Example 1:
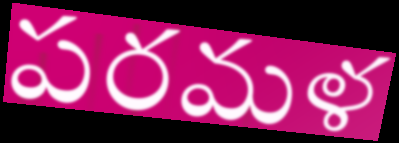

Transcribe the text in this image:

పరమళ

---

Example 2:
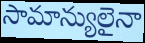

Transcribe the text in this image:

సామాన్యులైనా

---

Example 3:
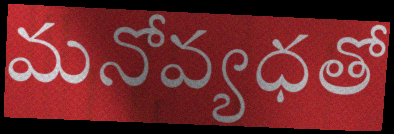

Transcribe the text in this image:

మనోవ్యధతో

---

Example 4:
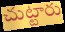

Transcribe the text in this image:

చుట్టారు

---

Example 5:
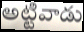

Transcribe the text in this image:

అట్టివాడు